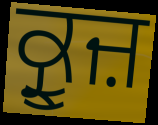
ਕ੍ਰੂਜ਼